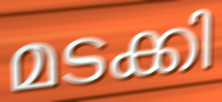
മടക്കി